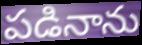
పడినాను